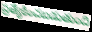
ప్రత్యేకించబడుతుంది